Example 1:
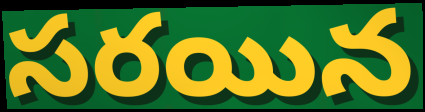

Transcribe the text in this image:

సరయిన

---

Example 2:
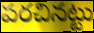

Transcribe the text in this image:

పరచినట్టు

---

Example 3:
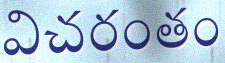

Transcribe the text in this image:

విచరంతం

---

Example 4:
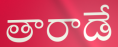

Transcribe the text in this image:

తారాడే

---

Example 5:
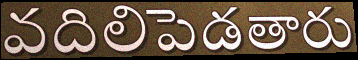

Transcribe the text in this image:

వదిలిపెడతారు